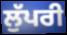
ਲੁੱਪਰੀ